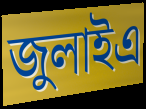
জুলাইএ